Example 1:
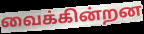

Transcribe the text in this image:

வைக்கின்றன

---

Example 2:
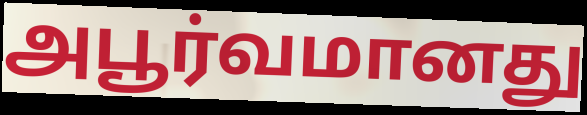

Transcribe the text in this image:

அபூர்வமானது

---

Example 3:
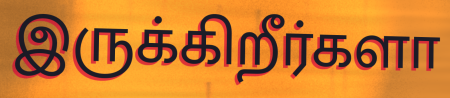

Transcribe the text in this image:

இருக்கிறீர்களா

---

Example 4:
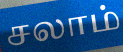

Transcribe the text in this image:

சலாம்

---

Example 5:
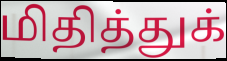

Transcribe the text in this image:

மிதித்துக்